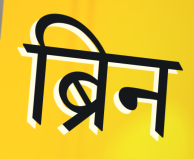
ब्रिन